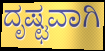
ದೃಷ್ಟವಾಗಿ